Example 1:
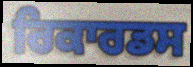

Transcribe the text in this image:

ਰਿਕਾਰਡਸ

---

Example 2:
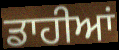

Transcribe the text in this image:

ਡਾਹੀਆਂ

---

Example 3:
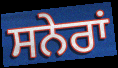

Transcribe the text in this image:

ਸਨੇਰਾਂ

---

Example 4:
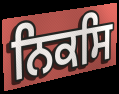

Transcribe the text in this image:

ਨਿਕਸਿ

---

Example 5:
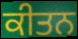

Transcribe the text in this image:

ਕੀਤਨ